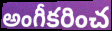
అంగీకరించ